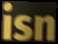
isn